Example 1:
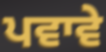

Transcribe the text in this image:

ਪਵਾਵੇ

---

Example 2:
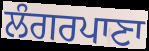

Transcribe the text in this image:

ਲੰਗਰਪਾਣਾ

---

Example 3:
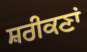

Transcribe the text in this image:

ਸ਼ਰੀਕਣਾਂ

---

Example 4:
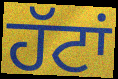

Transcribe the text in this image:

ਹੱਟਾਂ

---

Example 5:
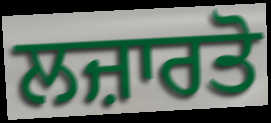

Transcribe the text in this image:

ਲਜ਼ਾਰਤੋ